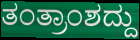
ತಂತ್ರಾಂಶದ್ದು